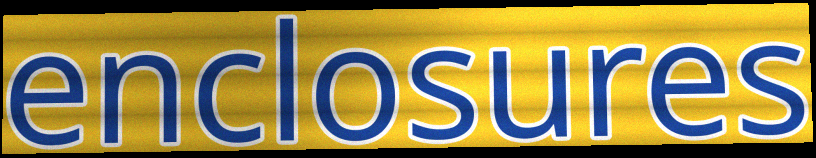
enclosures